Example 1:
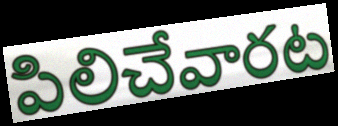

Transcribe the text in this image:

పిలిచేవారట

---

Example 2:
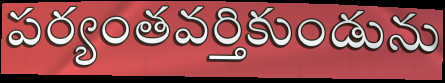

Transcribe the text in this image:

పర్యంతవర్తికుండును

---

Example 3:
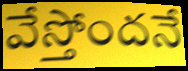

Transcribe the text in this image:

వేస్తోందనే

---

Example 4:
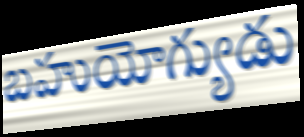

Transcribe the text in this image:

బహుయోగ్యుడు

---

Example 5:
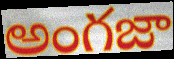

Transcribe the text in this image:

అంగజా